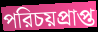
পরিচয়প্রাপ্ত